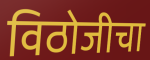
विठोजीचा